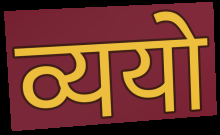
व्ययो